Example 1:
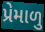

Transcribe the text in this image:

પ્રેમાળુ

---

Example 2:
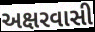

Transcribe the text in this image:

અક્ષરવાસી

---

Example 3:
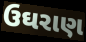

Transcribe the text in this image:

ઉઘરાણ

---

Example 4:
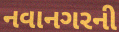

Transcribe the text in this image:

નવાનગરની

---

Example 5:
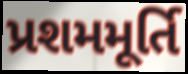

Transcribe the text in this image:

પ્રશમમૂર્તિ